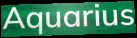
Aquarius